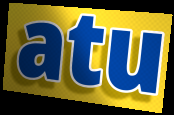
atu